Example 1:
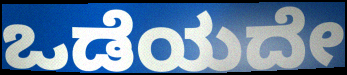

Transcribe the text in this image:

ಒಡೆಯದೇ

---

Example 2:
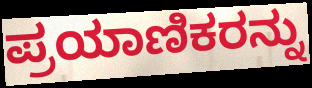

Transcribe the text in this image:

ಪ್ರಯಾಣಿಕರನ್ನು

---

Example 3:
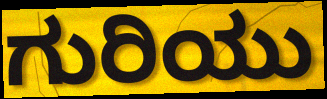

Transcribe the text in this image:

ಗುರಿಯು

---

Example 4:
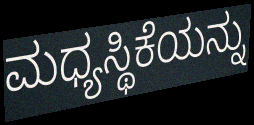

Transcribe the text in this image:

ಮಧ್ಯಸ್ಥಿಕೆಯನ್ನು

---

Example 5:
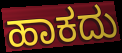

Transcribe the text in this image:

ಹಾಕದು